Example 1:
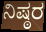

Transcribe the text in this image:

ನಿಷ್ಠರ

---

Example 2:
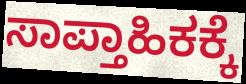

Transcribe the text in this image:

ಸಾಪ್ತಾಹಿಕಕ್ಕೆ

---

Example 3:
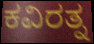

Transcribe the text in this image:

ಕವಿರತ್ನ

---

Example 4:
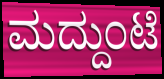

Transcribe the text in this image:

ಮದ್ದುಂಟೆ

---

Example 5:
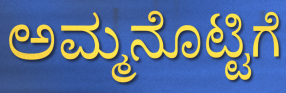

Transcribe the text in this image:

ಅಮ್ಮನೊಟ್ಟಿಗೆ